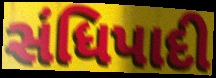
સંધિપાદી